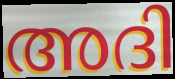
അദി